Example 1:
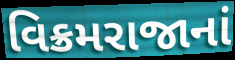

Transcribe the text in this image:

વિક્રમરાજાનાં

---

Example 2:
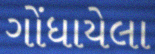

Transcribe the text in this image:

ગોંધાયેલા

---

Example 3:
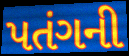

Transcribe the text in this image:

પતંગની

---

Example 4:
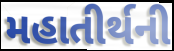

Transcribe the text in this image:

મહાતીર્થની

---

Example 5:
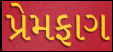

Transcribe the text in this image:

પ્રેમફાગ